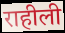
राहीली